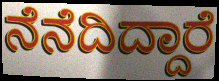
ನೆನೆದಿದ್ದಾರೆ